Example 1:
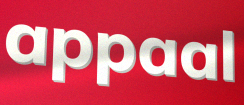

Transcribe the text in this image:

appaal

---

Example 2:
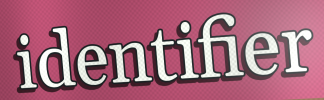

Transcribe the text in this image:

identifier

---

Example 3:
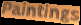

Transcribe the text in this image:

Paintings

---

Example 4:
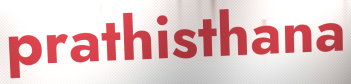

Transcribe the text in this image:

prathisthana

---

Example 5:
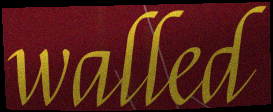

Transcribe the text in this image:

walled